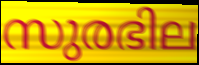
സുരഭില